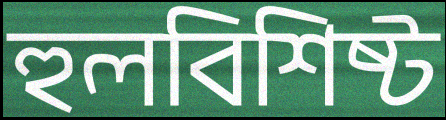
হুলবিশিষ্ট